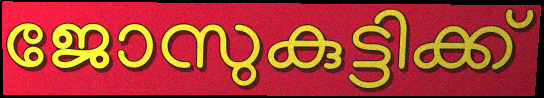
ജോസുകുട്ടിക്ക്